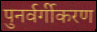
पुनर्वर्गीकरण